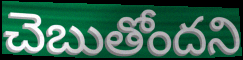
చెబుతోందని